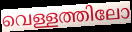
വെള്ളത്തിലോ